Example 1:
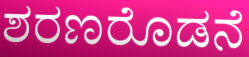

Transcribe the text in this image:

ಶರಣರೊಡನೆ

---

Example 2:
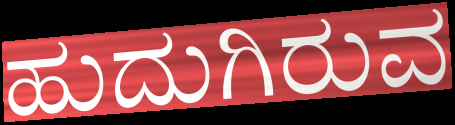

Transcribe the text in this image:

ಹುದುಗಿರುವ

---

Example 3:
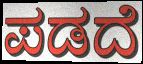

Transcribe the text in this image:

ಪಡದೆ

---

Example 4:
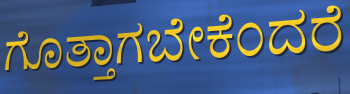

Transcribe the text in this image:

ಗೊತ್ತಾಗಬೇಕೆಂದರೆ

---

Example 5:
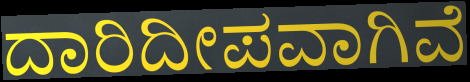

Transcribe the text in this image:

ದಾರಿದೀಪವಾಗಿವೆ